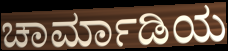
ಚಾರ್ಮಾಡಿಯ